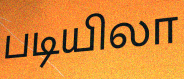
படியிலா